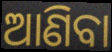
ଆଣିବା